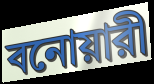
বনোয়ারী